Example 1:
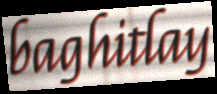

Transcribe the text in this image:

baghitlay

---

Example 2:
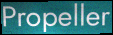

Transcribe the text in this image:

Propeller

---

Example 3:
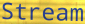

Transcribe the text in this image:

Stream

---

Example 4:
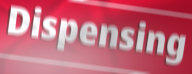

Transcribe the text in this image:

Dispensing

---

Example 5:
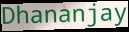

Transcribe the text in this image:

Dhananjay